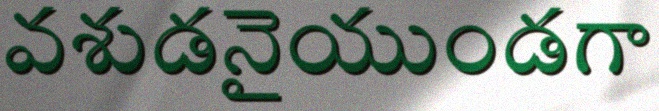
వశుడనైయుండగా